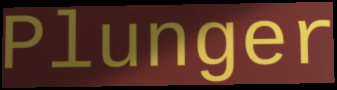
Plunger